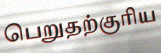
பெறுதற்குரிய